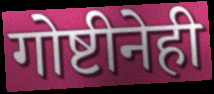
गोष्टीनेही